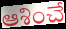
ఆశించే